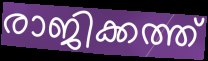
രാജിക്കത്ത്